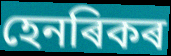
হেনৰিকৰ